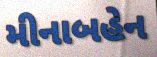
મીનાબહેન